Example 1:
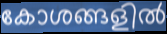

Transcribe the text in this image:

കോശങ്ങളിൽ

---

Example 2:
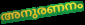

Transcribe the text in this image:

അനുരണനം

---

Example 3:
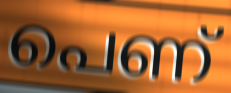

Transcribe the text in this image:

പെണ്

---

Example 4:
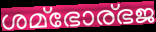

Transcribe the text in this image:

ശമ്ഭോര്ഭജ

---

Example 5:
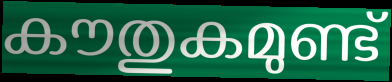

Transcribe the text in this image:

കൗതുകമുണ്ട്